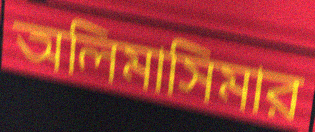
অলিমাসিমার